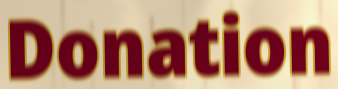
Donation